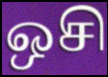
ஒசி